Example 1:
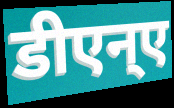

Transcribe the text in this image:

डीएन्ए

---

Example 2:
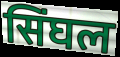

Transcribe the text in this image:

सिंघल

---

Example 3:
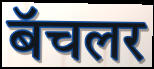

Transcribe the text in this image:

बॅचलर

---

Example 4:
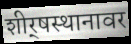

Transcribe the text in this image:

शीर्षस्थानावर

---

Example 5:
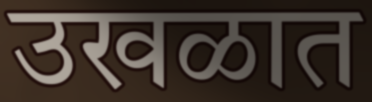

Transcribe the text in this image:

उखळात